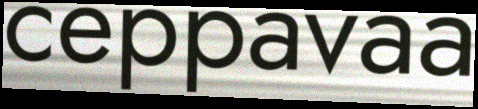
ceppavaa